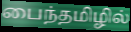
பைந்தமிழில்